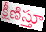
క్షీణిస్తూ